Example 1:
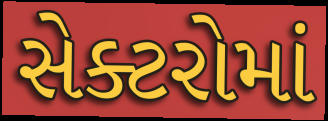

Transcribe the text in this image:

સેક્ટરોમાં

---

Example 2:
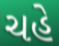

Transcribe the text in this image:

ચહે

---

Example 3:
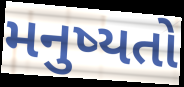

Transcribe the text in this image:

મનુષ્યતો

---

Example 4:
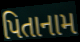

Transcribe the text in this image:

પિતાનામ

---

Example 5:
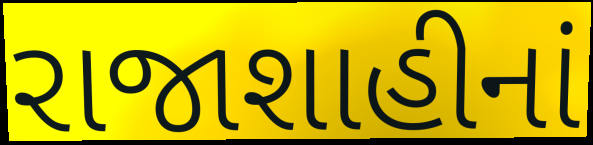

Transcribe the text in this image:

રાજાશાહીનાં